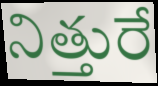
నిత్తురే